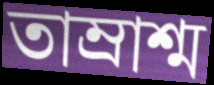
তাম্রাশ্ম